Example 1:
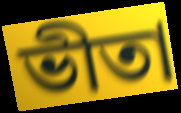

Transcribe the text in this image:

ভীতা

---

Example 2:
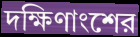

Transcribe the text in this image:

দক্ষিণাংশের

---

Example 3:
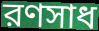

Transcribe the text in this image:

রণসাধ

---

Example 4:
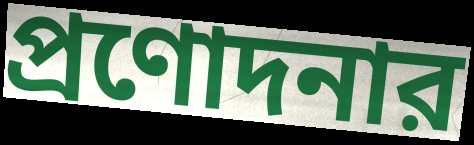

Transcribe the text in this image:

প্রণোদনার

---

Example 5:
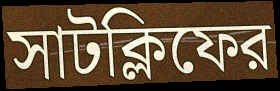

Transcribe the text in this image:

সাটক্লিফের